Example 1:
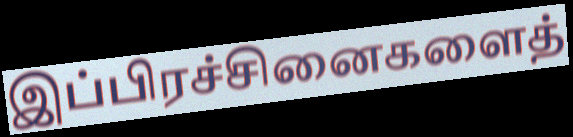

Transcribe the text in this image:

இப்பிரச்சினைகளைத்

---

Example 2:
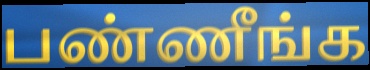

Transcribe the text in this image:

பண்ணீங்க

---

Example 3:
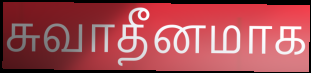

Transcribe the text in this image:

சுவாதீனமாக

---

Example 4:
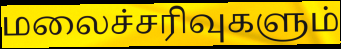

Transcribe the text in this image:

மலைச்சரிவுகளும்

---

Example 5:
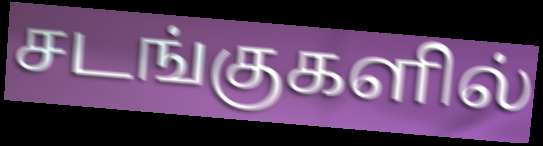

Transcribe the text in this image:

சடங்குகளில்